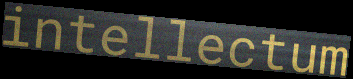
intellectum